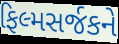
ફિલ્મસર્જકને